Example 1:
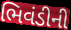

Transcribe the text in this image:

ભિવંડીની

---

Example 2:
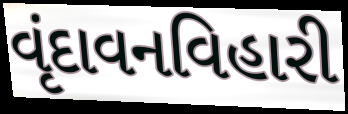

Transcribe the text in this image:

વૃંદાવનવિહારી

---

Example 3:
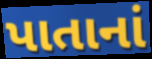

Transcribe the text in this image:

પાતાનાં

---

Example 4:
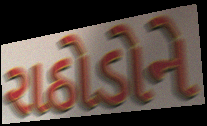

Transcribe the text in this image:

રાઠોડોને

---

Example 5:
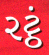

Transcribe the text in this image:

રટ્ઠં